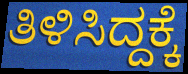
ತಿಳಿಸಿದ್ದಕ್ಕೆ